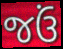
જઉં